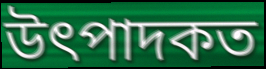
উৎপাদকত